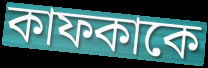
কাফকাকে